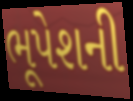
ભૂપેશની